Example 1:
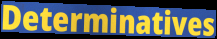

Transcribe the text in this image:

Determinatives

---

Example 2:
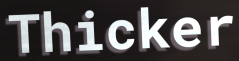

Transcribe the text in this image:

Thicker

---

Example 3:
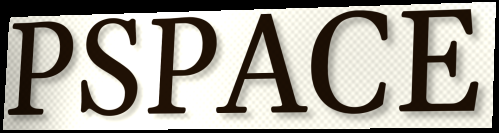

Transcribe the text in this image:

PSPACE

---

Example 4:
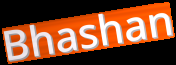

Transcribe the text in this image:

Bhashan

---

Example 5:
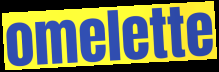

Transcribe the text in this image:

omelette